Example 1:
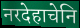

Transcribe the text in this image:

नरदेहाचेनि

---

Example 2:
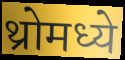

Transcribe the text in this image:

थ्रोमध्ये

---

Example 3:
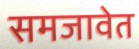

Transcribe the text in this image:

समजावेत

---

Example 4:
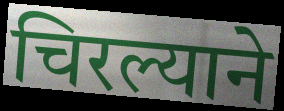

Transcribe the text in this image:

चिरल्याने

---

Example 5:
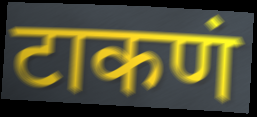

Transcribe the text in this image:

टाकणं